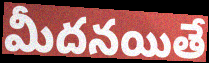
మీదనయితే